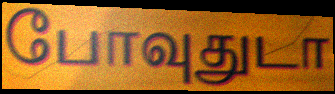
போவுதுடா